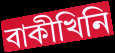
বাকীখিনি